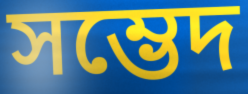
সম্ভেদ